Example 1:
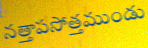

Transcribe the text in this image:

నత్తాపసోత్తముండు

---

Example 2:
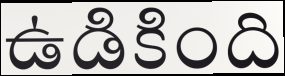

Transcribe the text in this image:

ఉడికింది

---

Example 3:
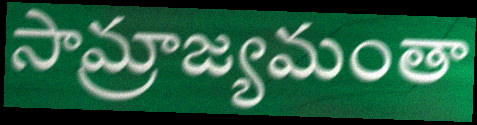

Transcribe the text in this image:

సామ్రాజ్యమంతా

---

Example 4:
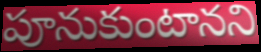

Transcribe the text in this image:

పూనుకుంటానని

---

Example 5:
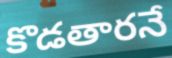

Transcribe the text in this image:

కొడతారనే